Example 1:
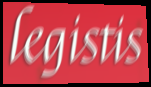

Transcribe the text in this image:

legistis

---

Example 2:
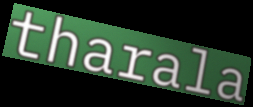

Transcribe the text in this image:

tharala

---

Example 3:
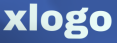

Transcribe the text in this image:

xlogo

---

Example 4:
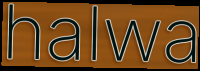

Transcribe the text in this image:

halwa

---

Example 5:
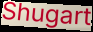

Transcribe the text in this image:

Shugart